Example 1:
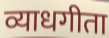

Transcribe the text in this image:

व्याधगीता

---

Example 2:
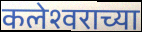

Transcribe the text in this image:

कलेश्वराच्या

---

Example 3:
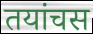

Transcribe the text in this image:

तयांचस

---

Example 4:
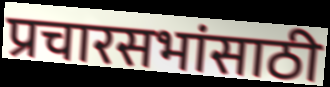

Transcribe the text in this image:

प्रचारसभांसाठी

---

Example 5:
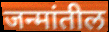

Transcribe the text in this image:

जन्मांतील